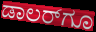
ಡಾಲರ್‌ಗೂ